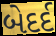
બેદર્દ